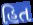
હિત